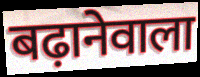
बढ़ानेवाला